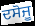
ਦਸੋਜੂ